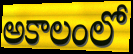
అకాలంలో